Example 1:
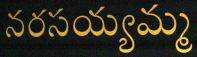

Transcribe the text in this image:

నరసయ్యమ్మ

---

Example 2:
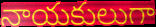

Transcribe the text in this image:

నాయకులుగా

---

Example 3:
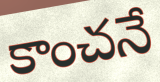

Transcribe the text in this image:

కాంచనే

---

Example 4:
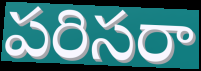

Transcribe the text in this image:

పరిసరా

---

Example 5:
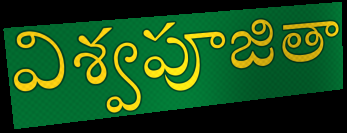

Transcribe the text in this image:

విశ్వపూజితా